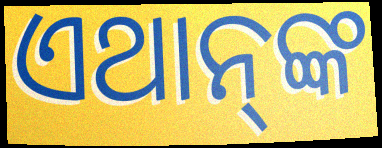
ଏଥାନ୍‍ଙ୍କ